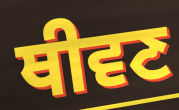
ਥੀਵਣ